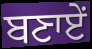
ਬਣਾਏਂ